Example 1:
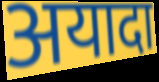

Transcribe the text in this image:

अयादा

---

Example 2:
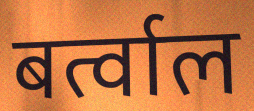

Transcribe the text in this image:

बर्त्वाल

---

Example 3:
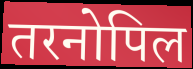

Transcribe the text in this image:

तरनोपिल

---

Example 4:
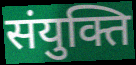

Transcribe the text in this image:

संयुक्ति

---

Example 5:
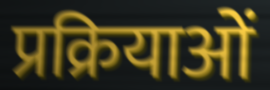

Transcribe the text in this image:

प्रक्रियाओं